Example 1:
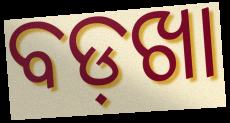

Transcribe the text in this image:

ବଡ଼ଖା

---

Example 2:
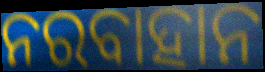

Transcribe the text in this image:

ନରବାହାନ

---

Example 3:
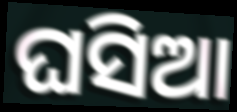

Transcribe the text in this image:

ଘସିଆ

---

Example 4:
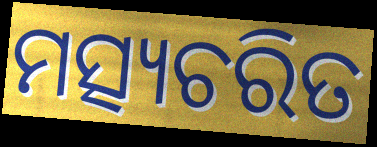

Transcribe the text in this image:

ମତ୍ସ୍ୟଚରିତ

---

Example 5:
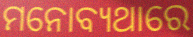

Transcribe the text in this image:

ମନୋବ୍ୟଥାରେ